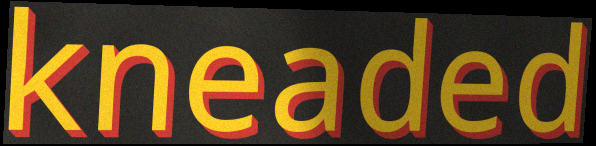
kneaded